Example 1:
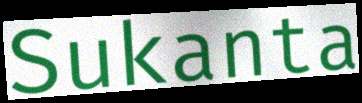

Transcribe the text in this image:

Sukanta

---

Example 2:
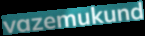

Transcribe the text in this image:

vazemukund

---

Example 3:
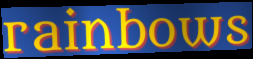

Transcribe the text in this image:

rainbows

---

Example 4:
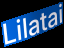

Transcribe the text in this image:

Lilatai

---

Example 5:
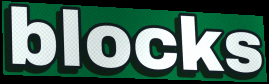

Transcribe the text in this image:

blocks